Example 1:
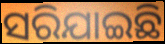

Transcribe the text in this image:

ସରିଯାଇଛି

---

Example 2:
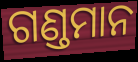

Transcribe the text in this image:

ଗଣ୍ଡମାନ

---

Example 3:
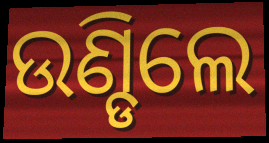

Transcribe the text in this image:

ଉଣ୍ଡିଲେ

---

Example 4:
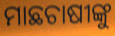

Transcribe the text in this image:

ମାଛଚାଷୀଙ୍କୁ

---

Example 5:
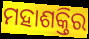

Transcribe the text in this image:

ମହାଶକ୍ତିର